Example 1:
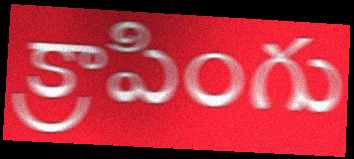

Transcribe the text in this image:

క్రాపింగు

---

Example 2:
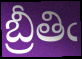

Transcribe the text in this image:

బ్రీతిఁ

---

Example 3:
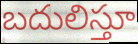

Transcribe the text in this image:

బదులిస్తూ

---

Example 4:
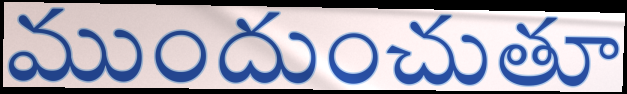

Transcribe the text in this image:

ముందుంచుతూ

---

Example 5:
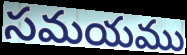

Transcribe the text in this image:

సమయము